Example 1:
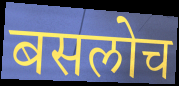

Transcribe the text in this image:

बसलोच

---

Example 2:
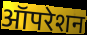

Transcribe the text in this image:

ऑपरेशन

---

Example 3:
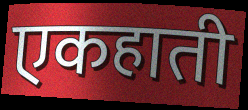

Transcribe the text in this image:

एकहाती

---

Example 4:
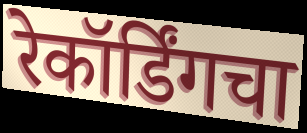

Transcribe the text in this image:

रेकॉर्डिंगचा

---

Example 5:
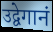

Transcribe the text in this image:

उद्वेगानं